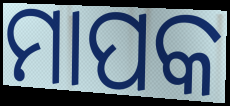
ମାପକ